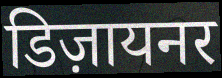
डिज़ायनर